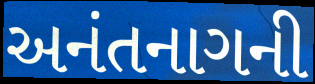
અનંતનાગની